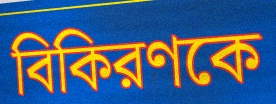
বিকিরণকে